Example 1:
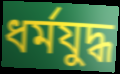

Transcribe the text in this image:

ধর্মযুদ্ধ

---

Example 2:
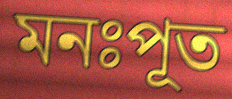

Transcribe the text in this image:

মনঃপূত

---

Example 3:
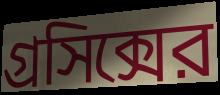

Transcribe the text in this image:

গ্রসিক্সের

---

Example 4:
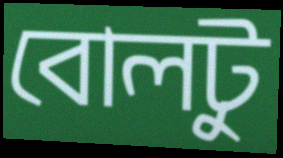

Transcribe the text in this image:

বোলটু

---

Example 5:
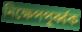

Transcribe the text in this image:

নিক্ষেপপূর্ব্বক